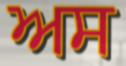
ਅਸ